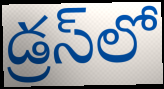
డ్రస్‌లో